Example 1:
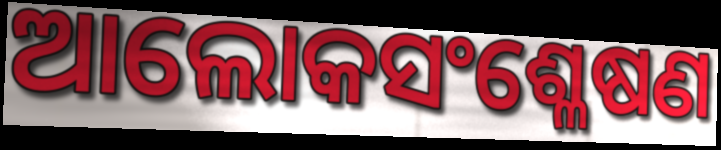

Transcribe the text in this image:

ଆଲୋକସଂଶ୍ଳେଷଣ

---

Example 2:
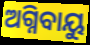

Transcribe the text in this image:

ଅଗ୍ନିବାୟୁ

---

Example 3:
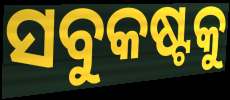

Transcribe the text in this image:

ସବୁକଷ୍ଟକୁ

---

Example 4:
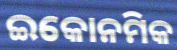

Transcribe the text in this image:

ଇକୋନମିକ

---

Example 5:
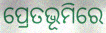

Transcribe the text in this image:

ପ୍ରେତଭୂମିରେ